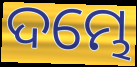
ଦମ୍ଭେ